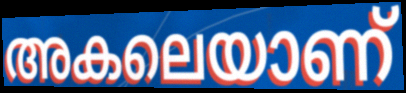
അകലെയാണ്